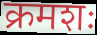
क्रमशः